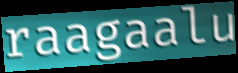
raagaalu